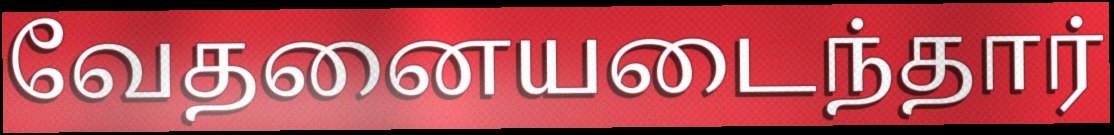
வேதனையடைந்தார்